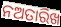
ନଅତାରିଖ